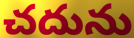
చదును